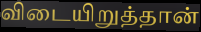
விடையிறுத்தான்